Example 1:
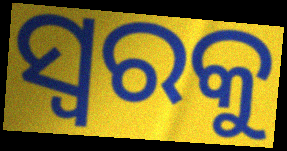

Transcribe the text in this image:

ସ୍ୱରକୁ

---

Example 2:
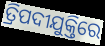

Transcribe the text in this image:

ତ୍ରିପଦୀଯୁକ୍ତିରେ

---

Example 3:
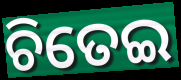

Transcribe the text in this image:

ଚିତେଇ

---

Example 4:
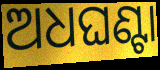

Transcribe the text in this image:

ଅଧଘଣ୍ଟା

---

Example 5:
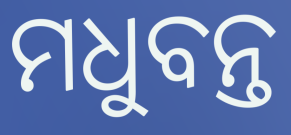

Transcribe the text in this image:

ମଧୁବନ୍ତ